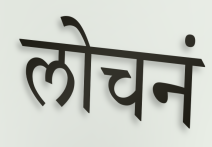
लोचनं